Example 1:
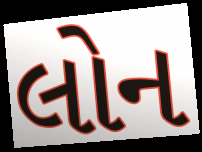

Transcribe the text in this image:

લોન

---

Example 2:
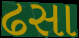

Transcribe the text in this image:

ઢસા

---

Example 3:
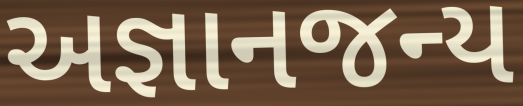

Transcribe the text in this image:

અજ્ઞાનજન્ય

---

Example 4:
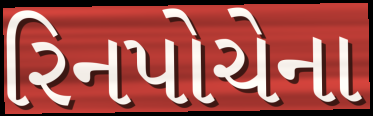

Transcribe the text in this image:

રિનપોચેના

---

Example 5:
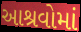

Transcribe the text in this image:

આશ્રવોમાં